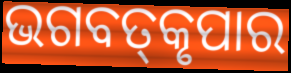
ଭଗବତ୍‌କୃପାର